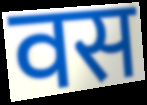
वस